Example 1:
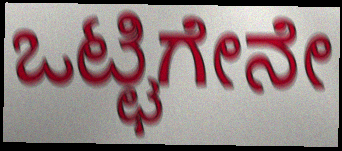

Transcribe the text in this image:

ಒಟ್ಟಿಗೇನೇ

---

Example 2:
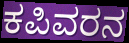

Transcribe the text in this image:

ಕಪಿವರನ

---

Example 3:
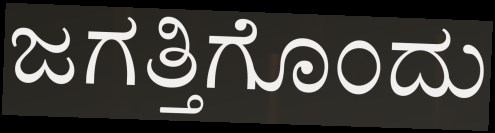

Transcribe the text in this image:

ಜಗತ್ತಿಗೊಂದು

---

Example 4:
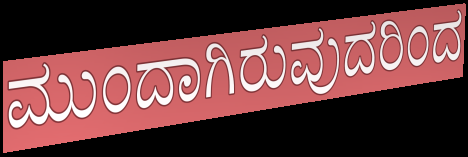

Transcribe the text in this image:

ಮುಂದಾಗಿರುವುದರಿಂದ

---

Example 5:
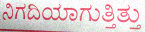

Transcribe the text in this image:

ನಿಗದಿಯಾಗುತ್ತಿತ್ತು